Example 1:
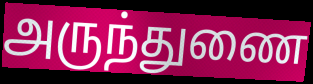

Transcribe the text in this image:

அருந்துணை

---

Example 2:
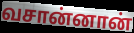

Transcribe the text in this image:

வசான்னான்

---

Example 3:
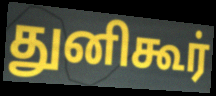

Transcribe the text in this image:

துனிகூர்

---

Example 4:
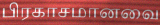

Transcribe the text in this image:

பிரகாசமானவை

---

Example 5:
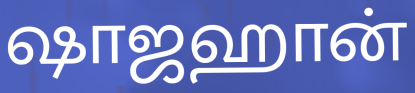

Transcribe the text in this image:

ஷாஜஹான்